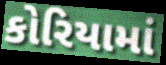
કોરિયામાં